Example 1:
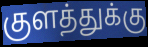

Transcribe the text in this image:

குளத்துக்கு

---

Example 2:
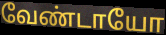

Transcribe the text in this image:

வேண்டாயோ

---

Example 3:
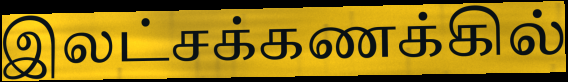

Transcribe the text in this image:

இலட்சக்கணக்கில்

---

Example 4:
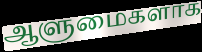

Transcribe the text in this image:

ஆளுமைகளாக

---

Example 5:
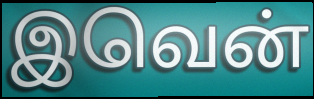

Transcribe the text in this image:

இவென்